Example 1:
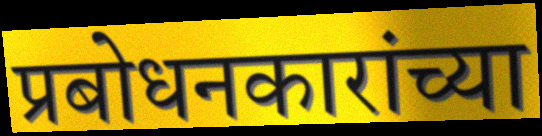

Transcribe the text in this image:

प्रबोधनकारांच्या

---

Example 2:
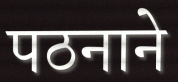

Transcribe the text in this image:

पठनाने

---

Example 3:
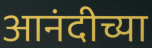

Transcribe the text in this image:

आनंदीच्या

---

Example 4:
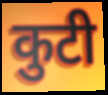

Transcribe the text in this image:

कुटी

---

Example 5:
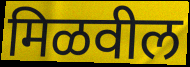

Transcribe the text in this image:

मिळवील